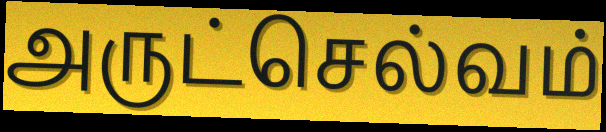
அருட்செல்வம்